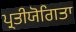
ਪ੍ਰਤੀਯੋਗਿਤਾ